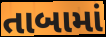
તાબામાં